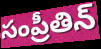
సంప్రీతిన్